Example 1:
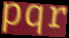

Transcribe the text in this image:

pqr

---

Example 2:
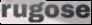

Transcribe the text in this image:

rugose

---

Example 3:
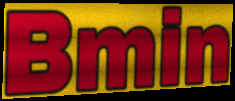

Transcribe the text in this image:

Bmin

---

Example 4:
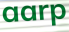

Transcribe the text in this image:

aarp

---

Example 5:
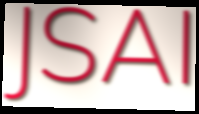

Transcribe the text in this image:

JSAI